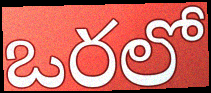
ఒరలో